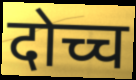
दोच्च